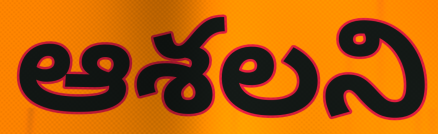
ఆశలని